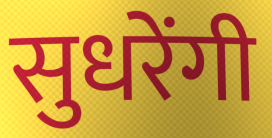
सुधरेंगी